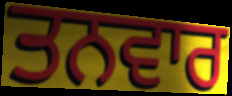
ਤਨਵਾਰ